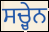
ਸਚ੍ਚੇਨ